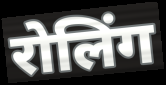
रोलिंग